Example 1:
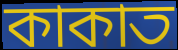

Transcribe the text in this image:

কাকাত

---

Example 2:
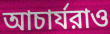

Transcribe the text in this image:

আচার্যরাও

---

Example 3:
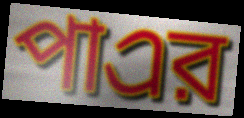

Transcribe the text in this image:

পাএর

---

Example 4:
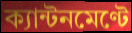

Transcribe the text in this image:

ক্যান্টনমেণ্টে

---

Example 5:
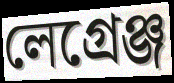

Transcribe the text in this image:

লেগ্রেঞ্জ